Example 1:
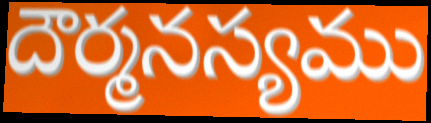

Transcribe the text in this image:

దౌర్మనస్యము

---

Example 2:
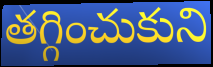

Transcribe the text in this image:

తగ్గించుకుని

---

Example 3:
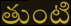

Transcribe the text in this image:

తుంటి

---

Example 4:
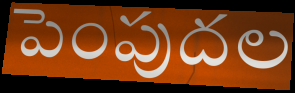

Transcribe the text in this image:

పెంపుదల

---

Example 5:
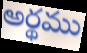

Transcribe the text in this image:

అర్థము